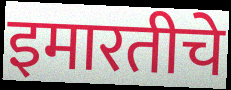
इमारतीचे